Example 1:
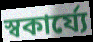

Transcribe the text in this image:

স্বকার্য্যে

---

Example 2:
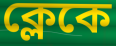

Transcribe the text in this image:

ক্লেকে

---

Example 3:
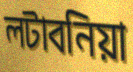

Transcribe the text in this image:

লটাবনিয়া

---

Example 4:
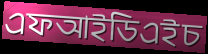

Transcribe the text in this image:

এফআইডিএইচ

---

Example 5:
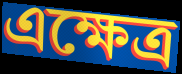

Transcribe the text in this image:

এক্ষেত্র